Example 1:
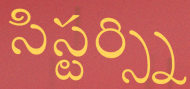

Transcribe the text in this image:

సిస్టర్స్ని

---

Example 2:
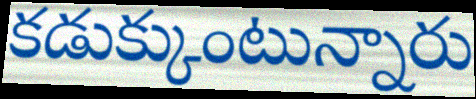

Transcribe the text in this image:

కడుక్కుంటున్నారు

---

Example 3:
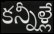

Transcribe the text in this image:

కన్నీళ్లే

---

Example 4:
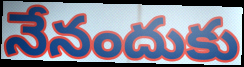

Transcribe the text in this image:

నేనందుకు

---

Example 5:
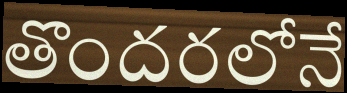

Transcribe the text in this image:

తొందరలోనే